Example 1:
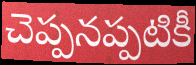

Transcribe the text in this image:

చెప్పనప్పటికీ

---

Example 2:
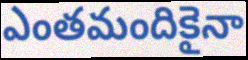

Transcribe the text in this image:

ఎంతమందికైనా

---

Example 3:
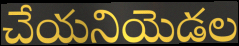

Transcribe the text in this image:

చేయనియెడల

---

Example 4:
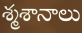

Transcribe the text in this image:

శ్మశానాలు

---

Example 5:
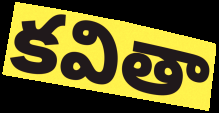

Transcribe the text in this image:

కవితా